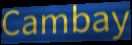
Cambay